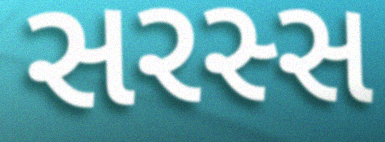
સરસ્સ